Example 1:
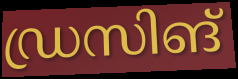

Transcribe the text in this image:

ഡ്രസിങ്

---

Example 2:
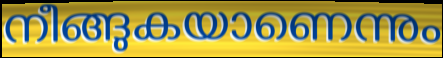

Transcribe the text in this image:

നീങ്ങുകയാണെന്നും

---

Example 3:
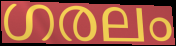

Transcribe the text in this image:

ഗരലം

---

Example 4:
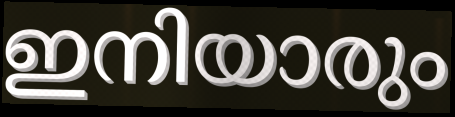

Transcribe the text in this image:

ഇനിയാരും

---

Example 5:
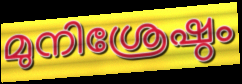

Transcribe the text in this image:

മുനിശ്രേഷ്ഠം